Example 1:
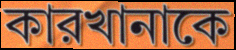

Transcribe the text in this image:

কারখানাকে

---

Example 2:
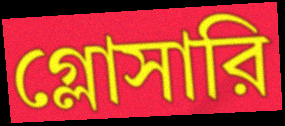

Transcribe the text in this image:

গ্লোসারি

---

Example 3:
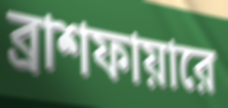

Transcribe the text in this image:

ব্রাশফায়ারে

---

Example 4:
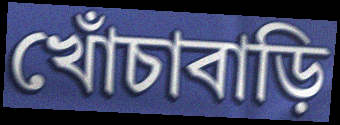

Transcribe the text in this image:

খোঁচাবাড়ি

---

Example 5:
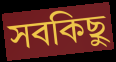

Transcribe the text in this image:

সবকিছু